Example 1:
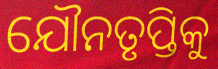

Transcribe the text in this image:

ଯୌନତୃପ୍ତିକୁ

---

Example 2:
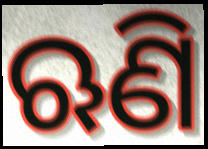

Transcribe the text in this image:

ଋଣି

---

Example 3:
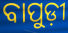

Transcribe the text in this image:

ବାପୁଡ଼ୀ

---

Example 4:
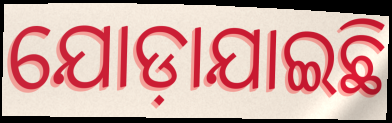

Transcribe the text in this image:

ଯୋଡ଼ାଯାଇଛି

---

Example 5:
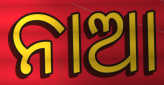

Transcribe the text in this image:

ନାଆ